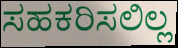
ಸಹಕರಿಸಲಿಲ್ಲ